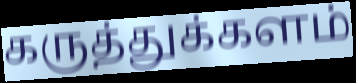
கருத்துக்களம்